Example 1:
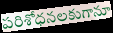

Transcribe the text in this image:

పరిశోధనలకుగానూ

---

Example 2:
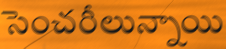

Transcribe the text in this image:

సెంచరీలున్నాయి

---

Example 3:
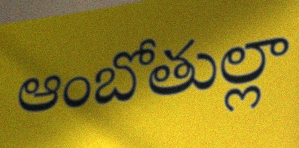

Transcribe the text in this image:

ఆంబోతుల్లా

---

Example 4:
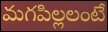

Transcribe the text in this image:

మగపిల్లలంటే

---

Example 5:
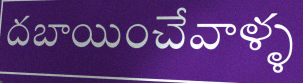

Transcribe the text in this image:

దబాయించేవాళ్ళ